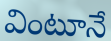
వింటూనే